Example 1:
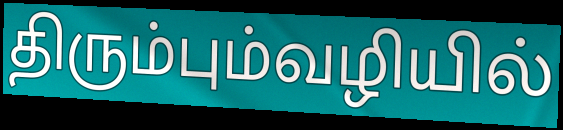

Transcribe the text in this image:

திரும்பும்வழியில்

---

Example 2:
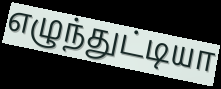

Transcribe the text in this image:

எழுந்துட்டியா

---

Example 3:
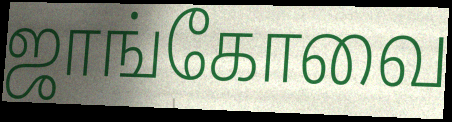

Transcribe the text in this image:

ஜாங்கோவை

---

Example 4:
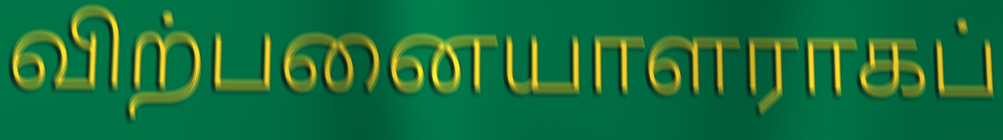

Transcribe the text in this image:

விற்பனையாளராகப்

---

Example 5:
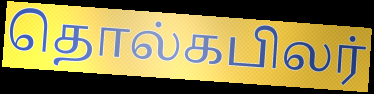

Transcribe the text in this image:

தொல்கபிலர்